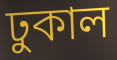
ঢুকাল